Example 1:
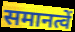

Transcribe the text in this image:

समानत्वें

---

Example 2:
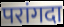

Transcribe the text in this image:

परांगदा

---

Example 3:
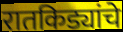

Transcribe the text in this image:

रातकिड्यांचे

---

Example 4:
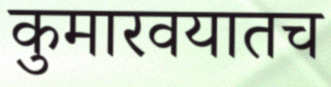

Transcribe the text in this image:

कुमारवयातच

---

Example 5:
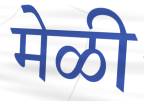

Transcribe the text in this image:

मेळी